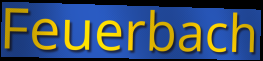
Feuerbach